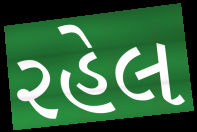
રહેલ